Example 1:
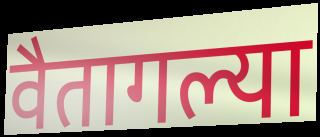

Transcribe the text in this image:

वैतागल्या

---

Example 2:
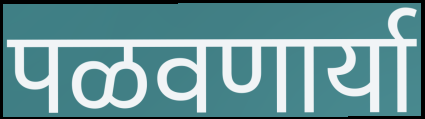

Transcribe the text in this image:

पळवणार्या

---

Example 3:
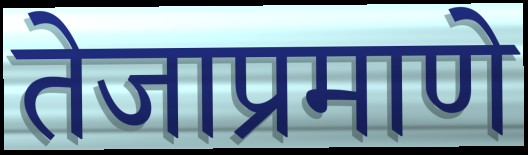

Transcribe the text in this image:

तेजाप्रमाणे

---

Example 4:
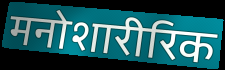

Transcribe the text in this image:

मनोशारीरिक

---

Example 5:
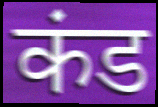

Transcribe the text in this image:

कंड